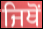
ਜਿਥੋਂ